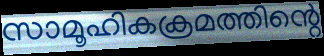
സാമൂഹികക്രമത്തിന്റെ